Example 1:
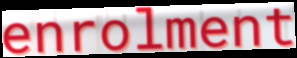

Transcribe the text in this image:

enrolment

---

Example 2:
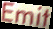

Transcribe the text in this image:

Emit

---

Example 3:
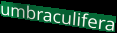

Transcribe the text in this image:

umbraculifera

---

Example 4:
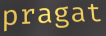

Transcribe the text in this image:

pragat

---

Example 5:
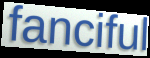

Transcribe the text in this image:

fanciful